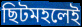
ছিটমহলেই